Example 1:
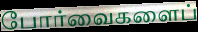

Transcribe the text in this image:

போர்வைகளைப்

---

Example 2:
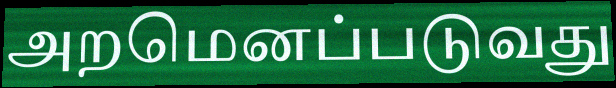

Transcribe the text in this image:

அறமெனப்படுவது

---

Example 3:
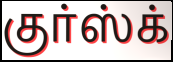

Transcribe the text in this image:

குர்ஸ்க்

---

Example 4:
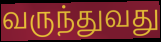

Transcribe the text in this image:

வருந்துவது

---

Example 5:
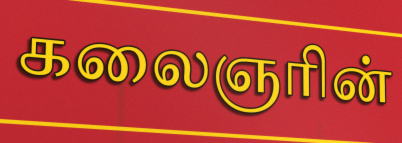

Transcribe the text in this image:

கலைஞரின்